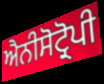
ਐਨੀਸੋਟ੍ਰੋਪੀ